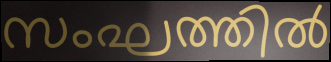
സംഘത്തിൽ